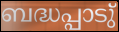
ബദ്ധപ്പാടു്